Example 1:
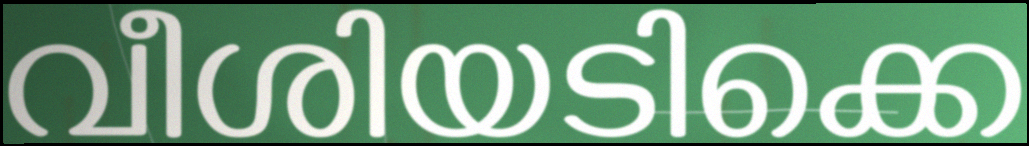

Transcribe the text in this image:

വീശിയടിക്കെ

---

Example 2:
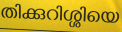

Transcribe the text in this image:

തിക്കുറിശ്ശിയെ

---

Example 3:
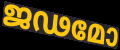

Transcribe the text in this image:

ജഢമോ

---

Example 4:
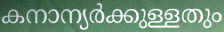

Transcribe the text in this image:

കനാന്യർക്കുള്ളതും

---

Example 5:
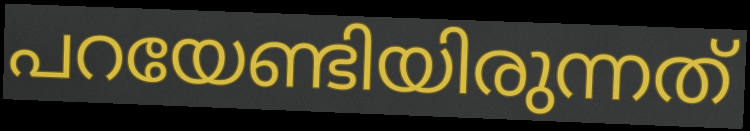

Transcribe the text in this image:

പറയേണ്ടിയിരുന്നത്